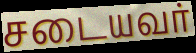
சடையவர்